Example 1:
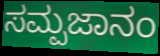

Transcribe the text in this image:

ಸಮ್ಪಜಾನಂ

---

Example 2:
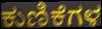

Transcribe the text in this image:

ಕುಣಿಕೆಗಳ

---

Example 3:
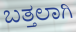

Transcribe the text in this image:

ಬತ್ತಲಾಗಿ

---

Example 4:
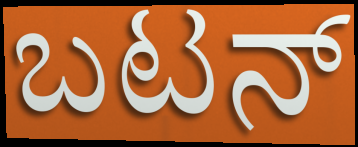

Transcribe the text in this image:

ಬಟನ್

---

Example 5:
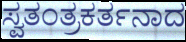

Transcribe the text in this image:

ಸ್ವತಂತ್ರಕರ್ತನಾದ